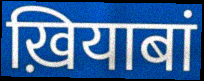
ख़ियाबां